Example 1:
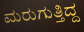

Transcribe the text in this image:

ಮರುಗುತ್ತಿದ್ದ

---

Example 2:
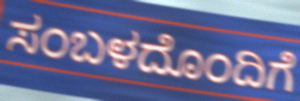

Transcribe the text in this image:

ಸಂಬಳದೊಂದಿಗೆ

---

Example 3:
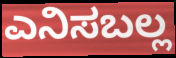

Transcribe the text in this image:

ಎನಿಸಬಲ್ಲ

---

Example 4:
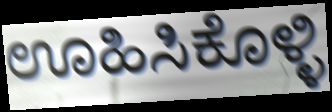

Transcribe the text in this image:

ಊಹಿಸಿಕೊಳ್ಳಿ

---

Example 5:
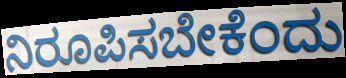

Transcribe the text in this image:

ನಿರೂಪಿಸಬೇಕೆಂದು